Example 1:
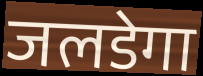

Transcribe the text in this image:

जलडेगा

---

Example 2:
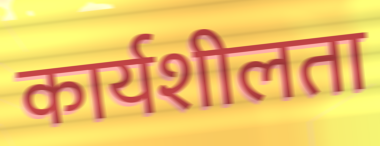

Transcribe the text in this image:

कार्यशीलता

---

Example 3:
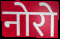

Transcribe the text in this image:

नोरो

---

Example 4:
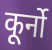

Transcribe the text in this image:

कूर्नो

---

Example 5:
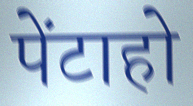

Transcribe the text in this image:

पेंटाहो